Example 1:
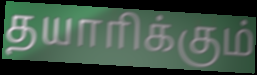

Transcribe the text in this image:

தயாரிக்கும்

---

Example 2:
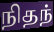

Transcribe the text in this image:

நிதந்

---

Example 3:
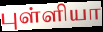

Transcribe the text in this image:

புள்ளியா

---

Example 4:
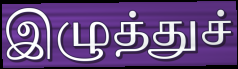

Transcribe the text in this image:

இழுத்துச்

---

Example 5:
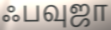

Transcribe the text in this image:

ஃபவுஜா